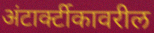
अंटार्क्टीकावरील